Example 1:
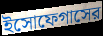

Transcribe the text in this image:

ইসোফেগাসের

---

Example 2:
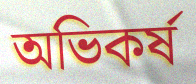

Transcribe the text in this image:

অভিকর্ষ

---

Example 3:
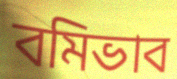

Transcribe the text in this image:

বমিভাব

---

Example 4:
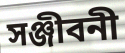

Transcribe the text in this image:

সঞ্জীবনী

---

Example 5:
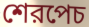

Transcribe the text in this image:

শেরপেচ